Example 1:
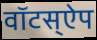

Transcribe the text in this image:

वॉटस्ऐप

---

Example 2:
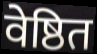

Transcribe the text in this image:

वेष्ठित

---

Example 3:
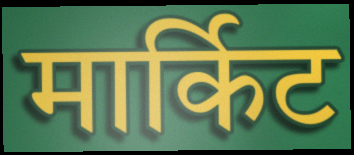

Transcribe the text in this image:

मार्किट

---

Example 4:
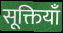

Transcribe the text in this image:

सूक्तियाँ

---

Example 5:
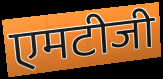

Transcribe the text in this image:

एमटीजी